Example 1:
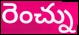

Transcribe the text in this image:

రెంచ్ను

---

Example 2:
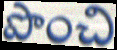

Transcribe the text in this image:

పొంచి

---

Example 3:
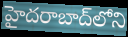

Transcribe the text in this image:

హైదరాబాద్‌లోని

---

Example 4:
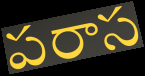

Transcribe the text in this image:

పరాస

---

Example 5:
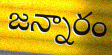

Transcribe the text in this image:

జన్నారం